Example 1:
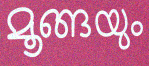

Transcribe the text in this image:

മൂങ്ങയും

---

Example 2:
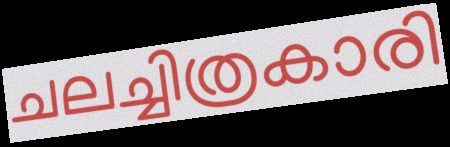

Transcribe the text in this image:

ചലച്ചിത്രകാരി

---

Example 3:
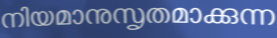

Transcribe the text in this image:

നിയമാനുസൃതമാക്കുന്ന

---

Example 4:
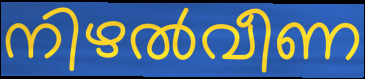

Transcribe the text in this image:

നിഴൽവീണ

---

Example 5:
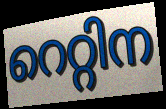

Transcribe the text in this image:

റെറ്റിന